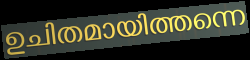
ഉചിതമായിത്തന്നെ